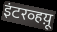
इंटरव्हय़ू